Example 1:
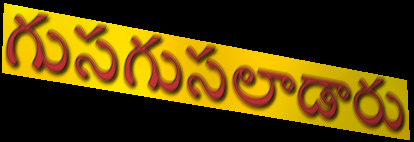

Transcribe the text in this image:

గుసగుసలాడారు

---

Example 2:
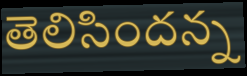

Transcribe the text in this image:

తెలిసిందన్న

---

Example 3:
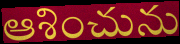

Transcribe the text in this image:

ఆశించును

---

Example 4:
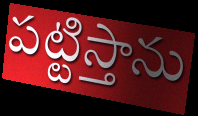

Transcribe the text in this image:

పట్టిస్తాను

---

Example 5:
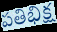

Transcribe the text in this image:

పతిభిక్ష